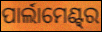
ପାର୍ଲାମେଣ୍ଟ୍‌ର